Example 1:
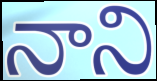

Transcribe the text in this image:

నాని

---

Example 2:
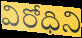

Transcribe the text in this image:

విరోధిని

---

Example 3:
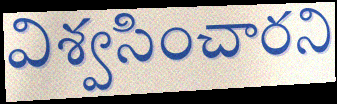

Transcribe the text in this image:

విశ్వసించారని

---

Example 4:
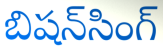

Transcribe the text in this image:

బిషన్‌సింగ్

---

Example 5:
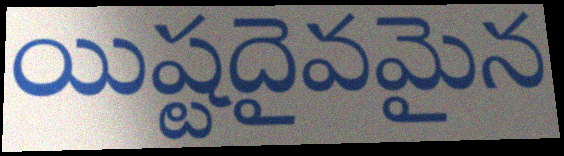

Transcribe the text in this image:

యిష్టదైవమైన